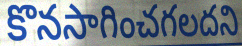
కొనసాగించగలదని